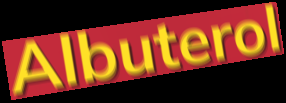
Albuterol